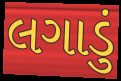
લગાડું